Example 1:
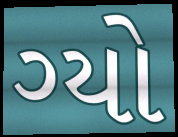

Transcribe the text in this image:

ગ્યો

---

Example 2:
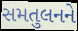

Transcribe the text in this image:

સમતુલનને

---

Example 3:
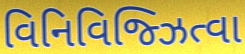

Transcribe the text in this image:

વિનિવિજ્ઝિત્વા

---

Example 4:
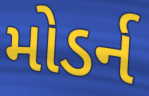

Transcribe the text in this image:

મોડર્ન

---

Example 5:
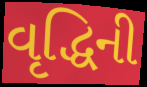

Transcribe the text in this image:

વૃદ્ધિની